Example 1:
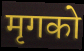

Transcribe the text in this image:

मृगको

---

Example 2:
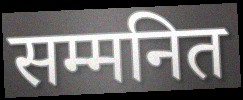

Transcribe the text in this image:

सम्मनित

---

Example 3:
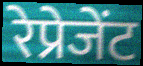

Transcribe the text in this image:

रेप्रेजेंट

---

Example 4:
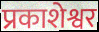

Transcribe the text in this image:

प्रकाशेश्वर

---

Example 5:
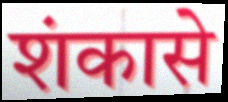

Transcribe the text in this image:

शंकासे